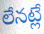
లేనట్లే